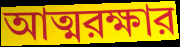
আত্মরক্ষার